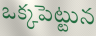
ఒక్కపెట్టున